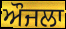
ਔਜਲਾ